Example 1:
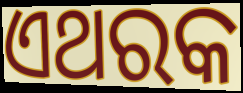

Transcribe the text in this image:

ଏଥରକ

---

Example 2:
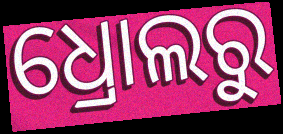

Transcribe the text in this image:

ଧ୍ରୋଲରୁ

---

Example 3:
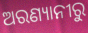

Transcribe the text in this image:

ଅରଣ୍ୟାନୀରୁ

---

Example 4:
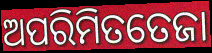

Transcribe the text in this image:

ଅପରିମିତତେଜା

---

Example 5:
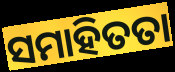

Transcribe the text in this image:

ସମାହିତତା